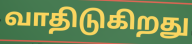
வாதிடுகிறது